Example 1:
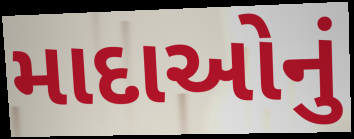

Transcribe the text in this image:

માદાઓનું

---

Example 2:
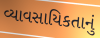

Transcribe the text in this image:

વ્યાવસાયિકતાનું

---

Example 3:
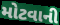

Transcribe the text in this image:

મોટવાની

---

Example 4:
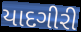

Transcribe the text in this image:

યાદગીરી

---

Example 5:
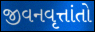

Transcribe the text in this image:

જીવનવૃત્તાંતો